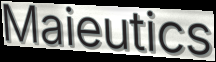
Maieutics